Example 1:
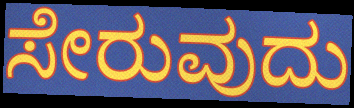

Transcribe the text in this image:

ಸೇರುವುದು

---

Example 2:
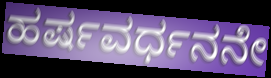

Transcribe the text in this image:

ಹರ್ಷವರ್ಧನನೇ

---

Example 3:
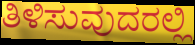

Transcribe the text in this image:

ತಿಳಿಸುವುದರಲ್ಲಿ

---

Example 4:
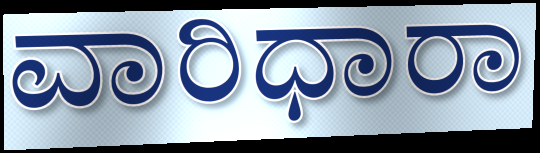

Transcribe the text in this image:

ವಾರಿಧಾರಾ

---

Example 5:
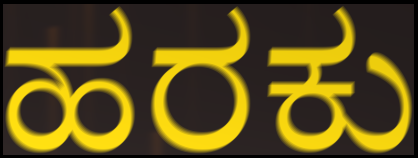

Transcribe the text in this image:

ಹರಕು